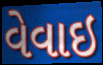
વેવાઇ